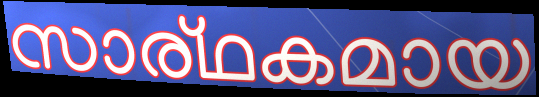
സാര്ഥകമായ